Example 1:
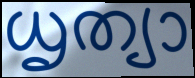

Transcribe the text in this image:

ധൃത്യാ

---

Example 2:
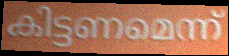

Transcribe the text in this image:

കിട്ടണമെന്ന്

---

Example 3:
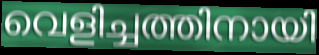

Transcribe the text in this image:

വെളിച്ചത്തിനായി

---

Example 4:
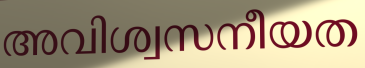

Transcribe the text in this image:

അവിശ്വസനീയത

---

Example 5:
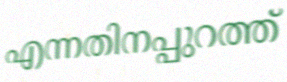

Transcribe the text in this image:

എന്നതിനപ്പുറത്ത്